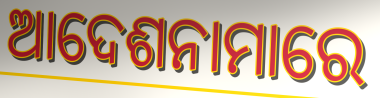
ଆଦେଶନାମାରେ